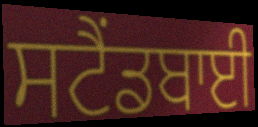
ਸਟੈਂਡਬਾਈ